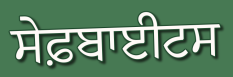
ਸੇਫ਼ਬਾਈਟਸ